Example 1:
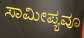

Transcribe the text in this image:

ಸಾಮೀಪ್ಯವೂ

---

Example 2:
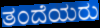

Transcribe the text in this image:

ತಂದೆಯರು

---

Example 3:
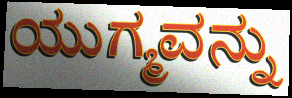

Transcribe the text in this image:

ಯುಗ್ಮವನ್ನು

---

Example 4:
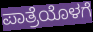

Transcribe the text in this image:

ಪಾತ್ರೆಯೊಳಗೆ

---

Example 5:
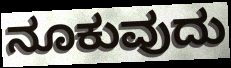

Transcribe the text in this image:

ನೂಕುವುದು